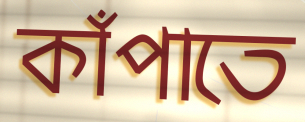
কাঁপাতে